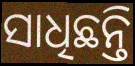
ସାଧିଛନ୍ତି